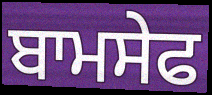
ਬਾਮਸੇਫ